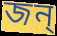
জন্